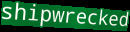
shipwrecked